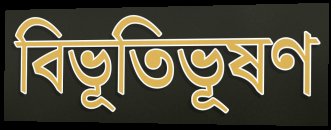
বিভূতিভূষণ